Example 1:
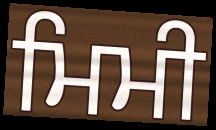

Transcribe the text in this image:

ਮਿਮੀ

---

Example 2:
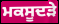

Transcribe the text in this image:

ਮਕਸੂਦੜੇ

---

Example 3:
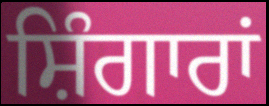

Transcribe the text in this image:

ਸ਼ਿੰਗਾਰਾਂ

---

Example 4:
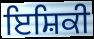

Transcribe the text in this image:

ਇਸ਼ਿਕੀ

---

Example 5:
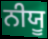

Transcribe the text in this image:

ਨੀਯੂ